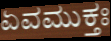
ಏವಮುಕ್ತಃ